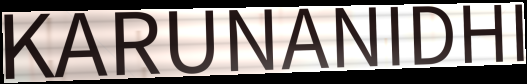
KARUNANIDHI